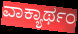
ವಾಕ್ಯಾರ್ಥಂ